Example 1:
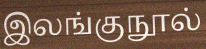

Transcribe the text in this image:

இலங்குநூல்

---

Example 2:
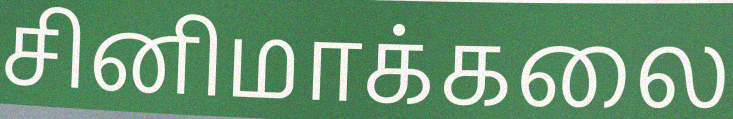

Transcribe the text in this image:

சினிமாக்கலை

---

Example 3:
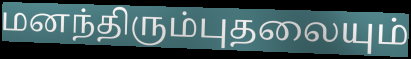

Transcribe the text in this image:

மனந்திரும்புதலையும்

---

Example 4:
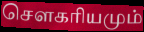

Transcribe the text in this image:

சௌகரியமும்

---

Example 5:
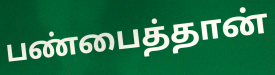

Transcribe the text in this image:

பண்பைத்தான்